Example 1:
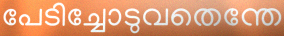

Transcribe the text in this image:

പേടിച്ചോടുവതെന്തേ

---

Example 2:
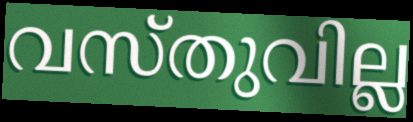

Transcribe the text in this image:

വസ്തുവില്ല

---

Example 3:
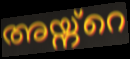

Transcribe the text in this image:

അയ്ന്റെ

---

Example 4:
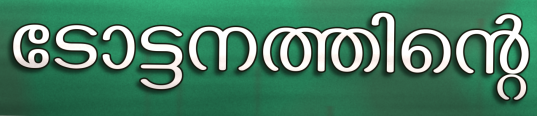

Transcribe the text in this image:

ടോട്ടനത്തിന്റെ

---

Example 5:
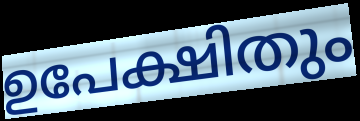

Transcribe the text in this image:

ഉപേക്ഷിതും